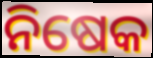
ନିଷେକ